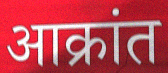
आक्रांत